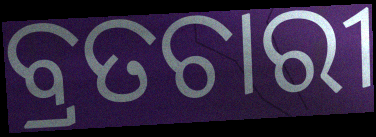
ବ୍ରତଚାରୀ